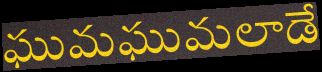
ఘుమఘుమలాడే